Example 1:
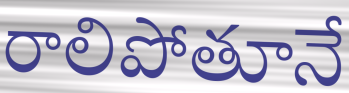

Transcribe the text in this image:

రాలిపోతూనే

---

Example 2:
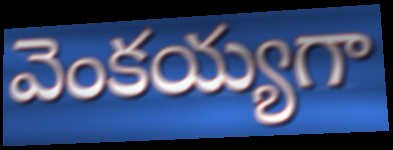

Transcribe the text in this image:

వెంకయ్యగా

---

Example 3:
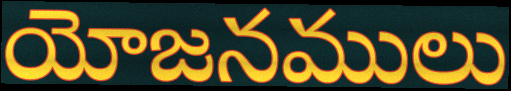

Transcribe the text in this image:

యోజనములు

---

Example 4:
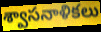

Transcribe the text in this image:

శ్వాసనాళికలు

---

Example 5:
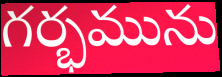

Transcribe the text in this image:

గర్భమును